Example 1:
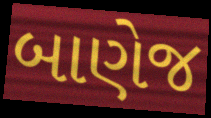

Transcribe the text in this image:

બાણેજ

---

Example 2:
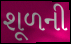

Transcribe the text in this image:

શૂળની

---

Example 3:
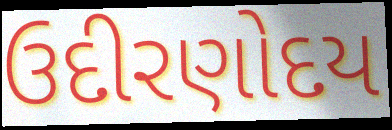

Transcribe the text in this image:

ઉદીરણોદય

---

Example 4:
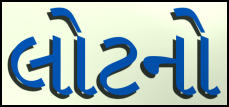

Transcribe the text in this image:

લોટનો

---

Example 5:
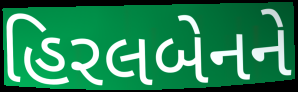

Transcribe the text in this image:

હિરલબેનને